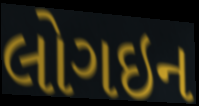
લોગઇન